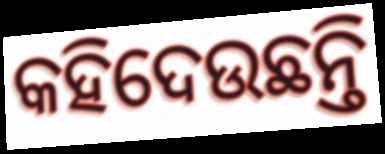
କହିଦେଉଛନ୍ତି